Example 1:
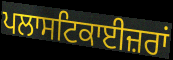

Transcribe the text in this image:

ਪਲਾਸਟਿਕਾਈਜ਼ਰਾਂ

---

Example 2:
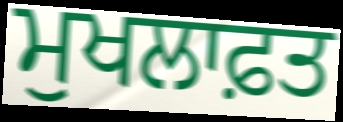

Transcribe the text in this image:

ਮੁਖਲਾਫ਼ਤ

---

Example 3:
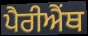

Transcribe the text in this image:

ਪੈਰੀਐਂਥ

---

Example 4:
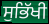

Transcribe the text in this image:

ਸੁਭਿੱਖੀ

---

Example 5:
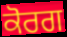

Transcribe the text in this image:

ਕੋਰਗ